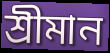
শ্রীমান